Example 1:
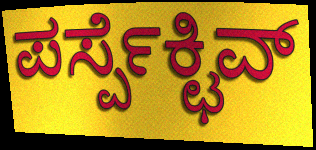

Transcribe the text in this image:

ಪರ್ಸ್ಪೆಕ್ಟಿವ್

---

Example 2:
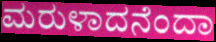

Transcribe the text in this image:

ಮರುಳಾದನೆಂದಾ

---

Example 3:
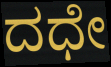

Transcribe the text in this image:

ದಧೇ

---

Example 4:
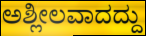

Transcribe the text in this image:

ಅಶ್ಲೀಲವಾದದ್ದು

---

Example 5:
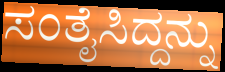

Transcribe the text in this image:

ಸಂತೈಸಿದ್ದನ್ನು